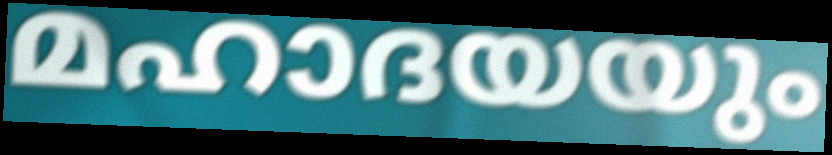
മഹാദയയും